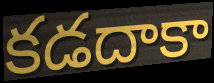
కడదాకా